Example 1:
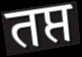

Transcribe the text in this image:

तप्त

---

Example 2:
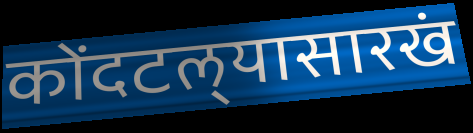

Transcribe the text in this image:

कोंदटल्यासारखं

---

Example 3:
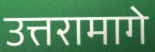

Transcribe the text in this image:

उत्तरामागे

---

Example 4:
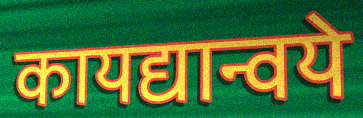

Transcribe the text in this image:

कायद्यान्वये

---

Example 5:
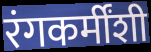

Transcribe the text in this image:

रंगकर्मींशी